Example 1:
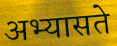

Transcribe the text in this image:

अभ्यासते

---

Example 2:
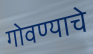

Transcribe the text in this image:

गोवण्याचे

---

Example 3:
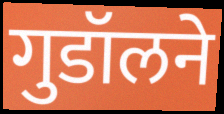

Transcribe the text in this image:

गुडॉलने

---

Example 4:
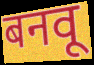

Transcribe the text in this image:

बनवू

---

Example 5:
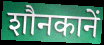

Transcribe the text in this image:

शौनकानें